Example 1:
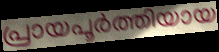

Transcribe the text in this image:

പ്രായപൂർത്തിയായ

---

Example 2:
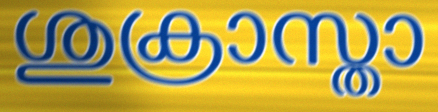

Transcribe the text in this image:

ശുക്രാസ്താ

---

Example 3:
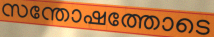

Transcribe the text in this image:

സന്തോഷത്തോടെ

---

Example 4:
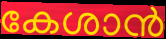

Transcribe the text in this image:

കേശാൻ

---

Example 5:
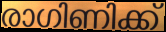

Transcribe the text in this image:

രാഗിണിക്ക്